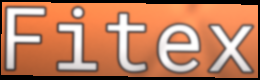
Fitex